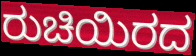
ರುಚಿಯಿರದ